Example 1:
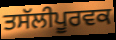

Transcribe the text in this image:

ਤਸੱਲੀਪੂਰਵਕ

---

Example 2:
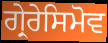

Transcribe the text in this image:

ਗ੍ਰੇਰੇਸਿਮੋਵ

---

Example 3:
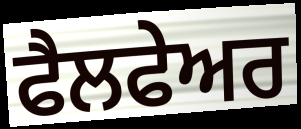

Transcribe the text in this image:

ਫੈਲਫੇਅਰ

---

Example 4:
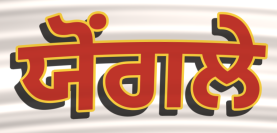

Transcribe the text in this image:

ਯੋਂਗਲੇ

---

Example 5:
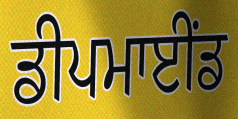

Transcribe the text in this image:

ਡੀਪਮਾਈਂਡ